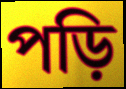
পড়ি